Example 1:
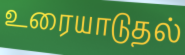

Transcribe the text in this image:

உரையாடுதல்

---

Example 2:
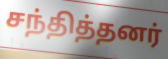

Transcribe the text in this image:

சந்தித்தனர்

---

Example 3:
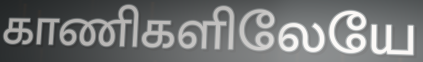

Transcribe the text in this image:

காணிகளிலேயே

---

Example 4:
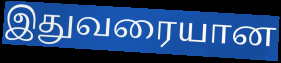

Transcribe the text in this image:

இதுவரையான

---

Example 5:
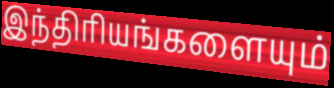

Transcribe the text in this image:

இந்திரியங்களையும்